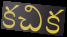
కచిక